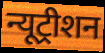
न्यूट्रीशन